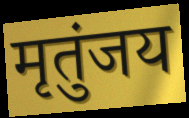
मृतुंजय